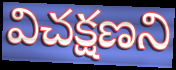
విచక్షణని